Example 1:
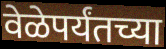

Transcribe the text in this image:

वेळेपर्यंतच्या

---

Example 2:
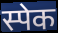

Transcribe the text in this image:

स्पेक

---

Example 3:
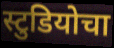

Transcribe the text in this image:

स्टुडियोचा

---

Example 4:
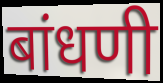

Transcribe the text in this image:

बांधणी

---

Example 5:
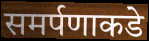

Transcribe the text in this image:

समर्पणाकडे